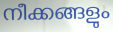
നീക്കങ്ങളും